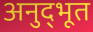
अनुद्भूत